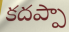
కదప్పా